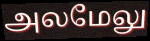
அலமேலு